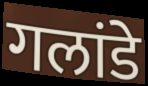
गलांडे